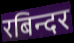
रबिन्दर